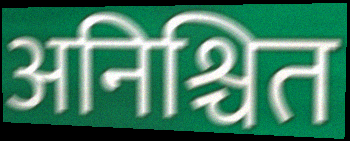
अनिश्चित